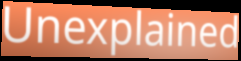
Unexplained